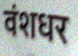
वंशधर